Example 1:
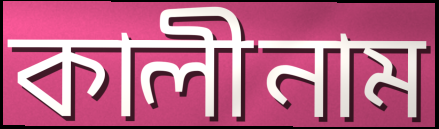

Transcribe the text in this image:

কালীনাম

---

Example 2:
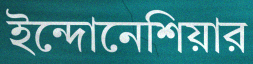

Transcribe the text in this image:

ইন্দোনেশিয়ার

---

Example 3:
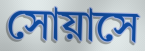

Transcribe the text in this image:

সোয়াসে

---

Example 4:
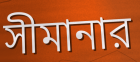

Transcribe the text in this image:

সীমানার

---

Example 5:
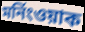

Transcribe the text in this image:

মর্নিংওয়াক